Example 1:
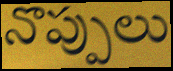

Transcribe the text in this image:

నొప్పులు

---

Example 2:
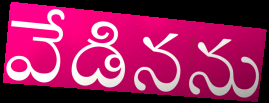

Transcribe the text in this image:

వేడినను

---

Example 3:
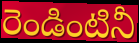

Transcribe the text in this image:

రెండింటినీ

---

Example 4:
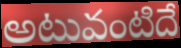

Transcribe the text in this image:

అటువంటిదే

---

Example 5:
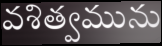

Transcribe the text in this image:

వశిత్వమును